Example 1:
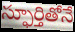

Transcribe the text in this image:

స్ఫూర్తితోనే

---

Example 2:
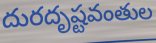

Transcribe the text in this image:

దురదృష్టవంతుల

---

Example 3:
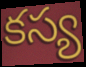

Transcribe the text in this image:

కస్య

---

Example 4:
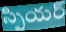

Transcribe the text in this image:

స్పియర్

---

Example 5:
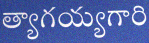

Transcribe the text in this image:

త్యాగయ్యగారి